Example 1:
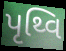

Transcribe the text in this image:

પૃથ્વિ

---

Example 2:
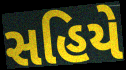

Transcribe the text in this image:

સહિયે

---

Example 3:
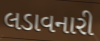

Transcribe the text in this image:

લડાવનારી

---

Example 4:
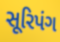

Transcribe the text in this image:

સૂરિપંગ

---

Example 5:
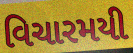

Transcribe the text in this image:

વિચારમયી